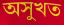
অসুখত